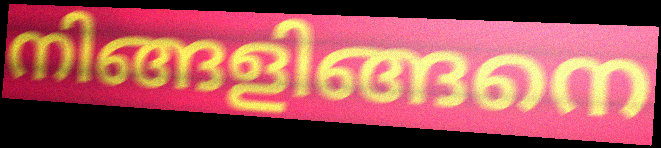
നിങ്ങളിങ്ങനെ